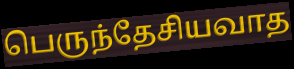
பெருந்தேசியவாத